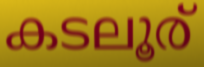
കടലൂര്